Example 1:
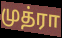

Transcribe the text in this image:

முத்ரா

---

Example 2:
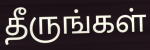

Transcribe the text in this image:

தீருங்கள்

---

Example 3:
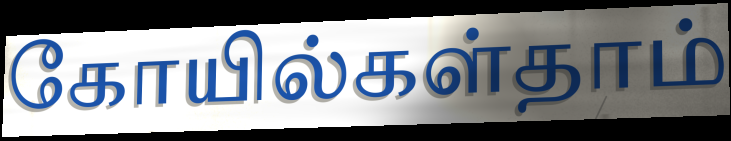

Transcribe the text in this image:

கோயில்கள்தாம்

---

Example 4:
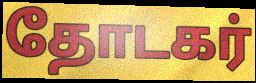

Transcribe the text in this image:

தோடகர்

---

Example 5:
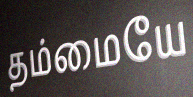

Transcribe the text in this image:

தம்மையே